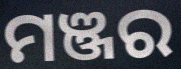
ମଞ୍ଜର